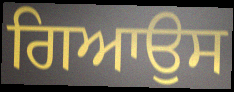
ਗਿਆਉਸ